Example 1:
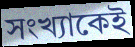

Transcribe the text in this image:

সংখ্যাকেই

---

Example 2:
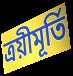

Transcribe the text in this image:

ত্ৰয়ীমূৰ্তি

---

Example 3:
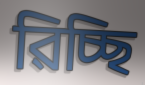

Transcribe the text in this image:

ৱিচ্ছি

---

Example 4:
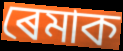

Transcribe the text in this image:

ৰেমাক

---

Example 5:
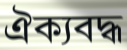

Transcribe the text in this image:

ঐক্যবদ্ধ